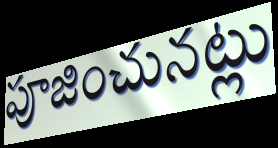
పూజించునట్లు